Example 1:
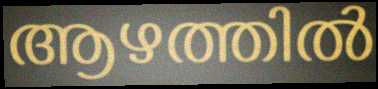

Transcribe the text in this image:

ആഴത്തിൽ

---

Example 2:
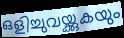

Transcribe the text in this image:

ഒളിച്ചുവയ്ക്കുകയും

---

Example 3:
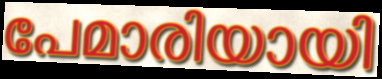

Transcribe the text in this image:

പേമാരിയായി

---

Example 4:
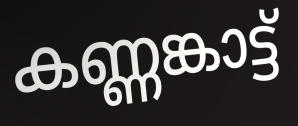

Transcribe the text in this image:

കണ്ണങ്കാട്ട്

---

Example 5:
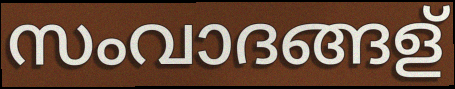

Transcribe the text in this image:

സംവാദങ്ങള്